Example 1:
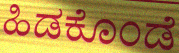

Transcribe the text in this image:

ಹಿಡಕೊಂಡೆ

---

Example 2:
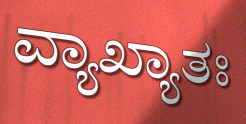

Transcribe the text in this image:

ವ್ಯಾಖ್ಯಾತಃ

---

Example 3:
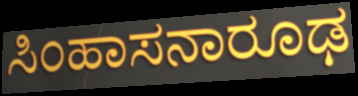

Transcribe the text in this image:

ಸಿಂಹಾಸನಾರೂಢ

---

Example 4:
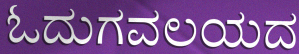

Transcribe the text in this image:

ಓದುಗವಲಯದ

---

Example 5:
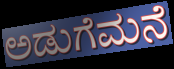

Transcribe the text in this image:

ಅಡುಗೆಮನೆ